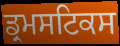
ਡ੍ਰਮਸਟਿਕਸ